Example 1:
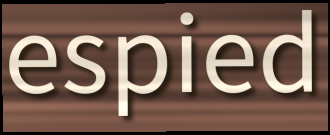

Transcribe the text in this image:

espied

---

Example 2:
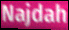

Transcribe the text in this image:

Najdah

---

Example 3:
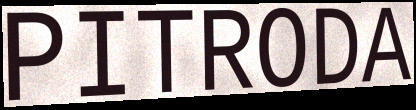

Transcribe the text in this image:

PITRODA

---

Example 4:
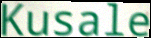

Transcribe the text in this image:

Kusale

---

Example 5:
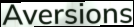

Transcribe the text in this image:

Aversions